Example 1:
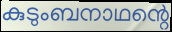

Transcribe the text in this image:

കുടുംബനാഥന്റെ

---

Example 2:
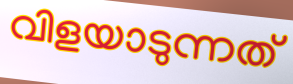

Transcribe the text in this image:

വിളയാടുന്നത്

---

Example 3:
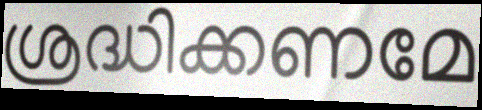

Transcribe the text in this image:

ശ്രദ്ധിക്കണമേ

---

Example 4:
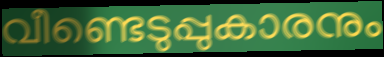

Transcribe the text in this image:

വീണ്ടെടുപ്പുകാരനും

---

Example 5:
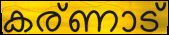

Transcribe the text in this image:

കര്ണാട്